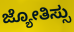
ಜ್ಯೋತಿಸ್ಸು